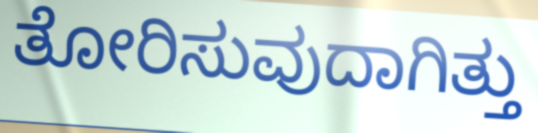
ತೋರಿಸುವುದಾಗಿತ್ತು